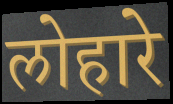
लोहारे